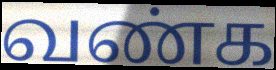
வண்க